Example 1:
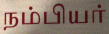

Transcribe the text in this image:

நம்பியர்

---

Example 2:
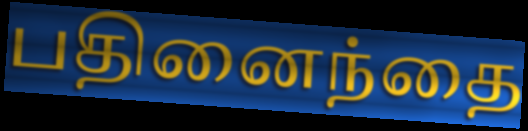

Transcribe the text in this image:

பதினைந்தை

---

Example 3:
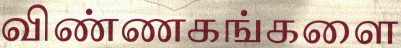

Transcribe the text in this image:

விண்ணகங்களை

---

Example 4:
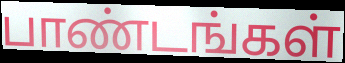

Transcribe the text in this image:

பாண்டங்கள்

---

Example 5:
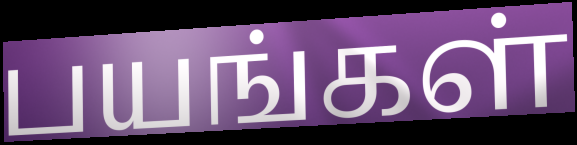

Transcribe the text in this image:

பயங்கள்